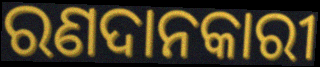
ରଣଦାନକାରୀ